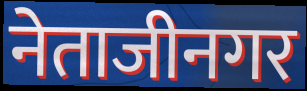
नेताजीनगर